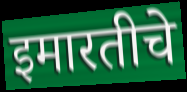
इमारतीचे